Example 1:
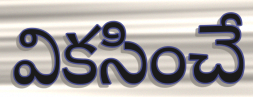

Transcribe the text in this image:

వికసించే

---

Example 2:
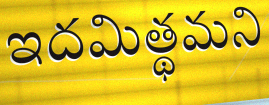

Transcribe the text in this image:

ఇదమిత్థమని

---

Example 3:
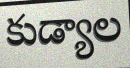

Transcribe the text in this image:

కుడ్యాల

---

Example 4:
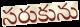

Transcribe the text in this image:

సరుకును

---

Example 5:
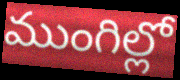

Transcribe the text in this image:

ముంగిల్లో